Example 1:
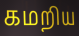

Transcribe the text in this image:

கமறிய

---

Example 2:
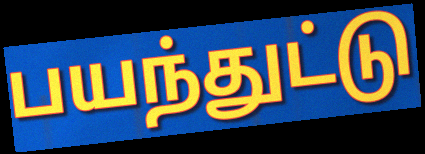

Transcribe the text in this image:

பயந்துட்டு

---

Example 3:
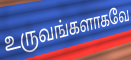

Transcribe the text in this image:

உருவங்களாகவே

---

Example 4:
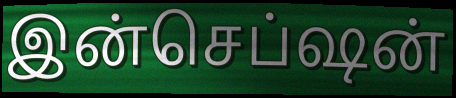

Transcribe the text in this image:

இன்செப்ஷன்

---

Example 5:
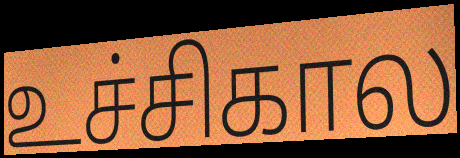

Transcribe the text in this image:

உச்சிகால